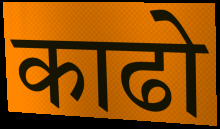
काढो